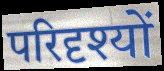
परिदृश्यों